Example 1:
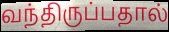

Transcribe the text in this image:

வந்திருப்பதால்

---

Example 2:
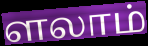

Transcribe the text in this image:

ளலாம்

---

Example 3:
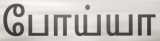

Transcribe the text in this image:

போய்யா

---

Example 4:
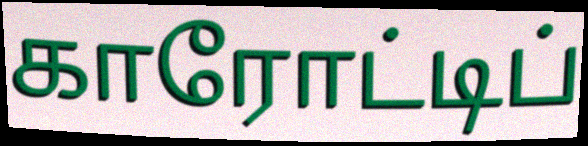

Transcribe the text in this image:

காரோட்டிப்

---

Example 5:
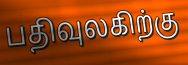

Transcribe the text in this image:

பதிவுலகிற்கு